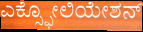
ಎಕ್ಸ್ಫೋಲಿಯೇಶನ್